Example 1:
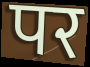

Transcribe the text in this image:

पर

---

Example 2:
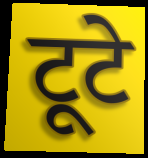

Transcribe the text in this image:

टूटे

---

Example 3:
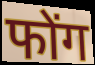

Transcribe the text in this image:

फोंग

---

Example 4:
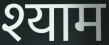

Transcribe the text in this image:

श्‍याम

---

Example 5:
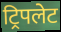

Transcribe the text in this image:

ट्रिपलेट